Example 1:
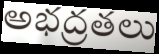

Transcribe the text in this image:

అభద్రతలు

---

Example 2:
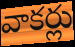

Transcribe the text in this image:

వాకర్లు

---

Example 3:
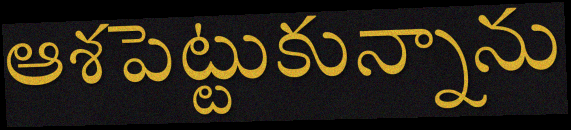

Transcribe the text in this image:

ఆశపెట్టుకున్నాను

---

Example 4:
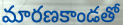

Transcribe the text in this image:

మారణకాండతో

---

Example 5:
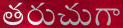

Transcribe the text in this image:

తరుచుగా